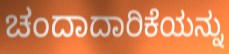
ಚಂದಾದಾರಿಕೆಯನ್ನು